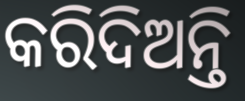
କରିଦିଅନ୍ତି